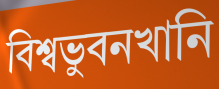
বিশ্বভুবনখানি